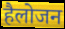
हैलोजन